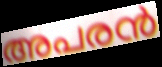
അപരൻ